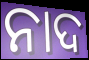
ନାଦ